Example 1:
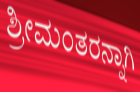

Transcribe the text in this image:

ಶ್ರೀಮಂತರನ್ನಾಗಿ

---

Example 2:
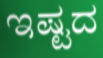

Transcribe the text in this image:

ಇಷ್ಟದ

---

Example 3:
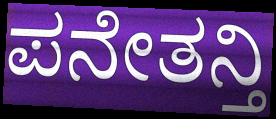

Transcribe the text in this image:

ಪನೇತನ್ತಿ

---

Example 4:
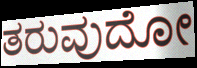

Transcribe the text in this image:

ತರುವುದೋ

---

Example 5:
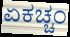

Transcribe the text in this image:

ಏಕಚ್ಚಂ